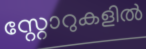
സ്റ്റോറുകളിൽ